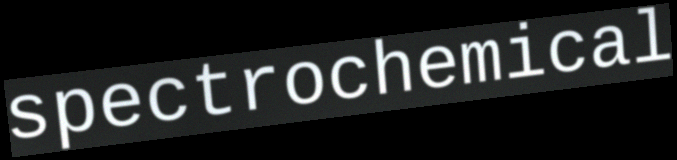
spectrochemical